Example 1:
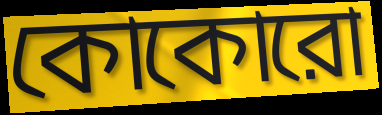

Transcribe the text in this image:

কোকোরো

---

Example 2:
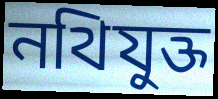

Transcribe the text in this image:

নথিযুক্ত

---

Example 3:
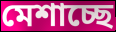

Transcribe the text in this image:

মেশাচ্ছে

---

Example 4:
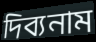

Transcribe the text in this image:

দিব্যনাম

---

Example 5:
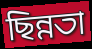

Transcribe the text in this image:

ছিন্নতা